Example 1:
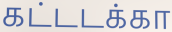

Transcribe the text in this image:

கட்டடக்கா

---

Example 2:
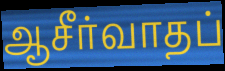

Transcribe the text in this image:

ஆசீர்வாதப்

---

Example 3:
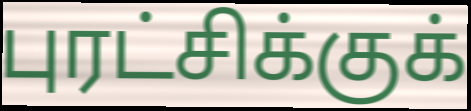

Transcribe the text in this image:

புரட்சிக்குக்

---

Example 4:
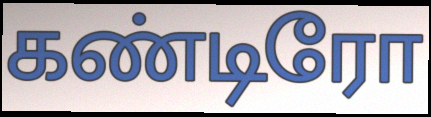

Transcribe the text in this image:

கண்டிரோ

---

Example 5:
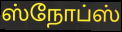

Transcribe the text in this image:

ஸ்நோப்ஸ்